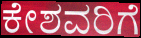
ಕೇಶವರಿಗೆ